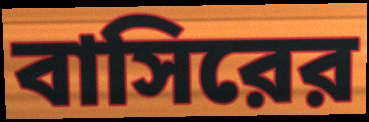
বাসিরের